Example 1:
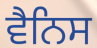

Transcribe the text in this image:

ਵੈਨਿਸ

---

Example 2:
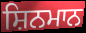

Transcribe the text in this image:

ਸ਼ਿਨਮਾਨ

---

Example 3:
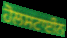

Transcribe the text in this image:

ਹੋਲਸਟਾਈਨ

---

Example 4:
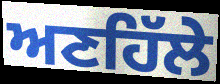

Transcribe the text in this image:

ਅਣਹਿੱਲੇ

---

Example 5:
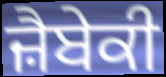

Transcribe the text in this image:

ਜ਼ੈਬੇਕੀ